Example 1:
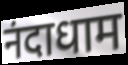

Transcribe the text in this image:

नंदाधाम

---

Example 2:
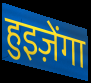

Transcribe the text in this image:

हुइज़ेंगा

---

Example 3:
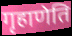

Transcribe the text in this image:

गृहाणेति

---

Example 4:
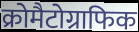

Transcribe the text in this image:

क्रोमैटोग्राफिक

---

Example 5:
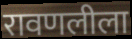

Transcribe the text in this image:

रावणलीला